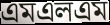
এমএলএম